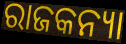
ରାଜକନ୍ୟା